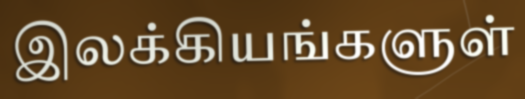
இலக்கியங்களுள்